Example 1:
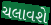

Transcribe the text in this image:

ચલાવશે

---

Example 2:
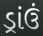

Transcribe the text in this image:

ડ્રાંઉં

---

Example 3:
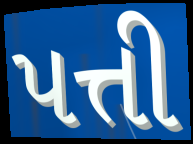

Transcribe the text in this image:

પત્તી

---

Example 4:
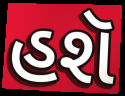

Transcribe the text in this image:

હશૅ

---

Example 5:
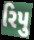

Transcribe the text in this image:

રિપુ